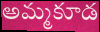
అమ్మకూడ